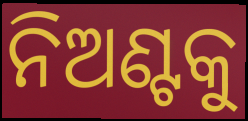
ନିଅଣ୍ଟକୁ